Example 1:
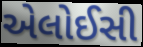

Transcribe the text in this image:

એલોઈસી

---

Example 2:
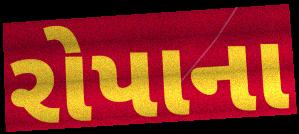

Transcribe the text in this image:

રોપાના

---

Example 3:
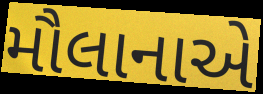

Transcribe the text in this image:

મૌલાનાએ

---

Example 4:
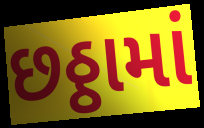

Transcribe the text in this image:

છઠ્ઠામાં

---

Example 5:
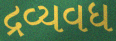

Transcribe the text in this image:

દ્રવ્યવધ